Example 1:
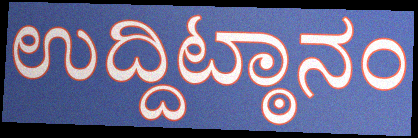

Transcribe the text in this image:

ಉದ್ದಿಟ್ಠಾನಂ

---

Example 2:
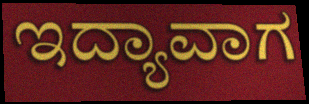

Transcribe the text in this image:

ಇದ್ಯಾವಾಗ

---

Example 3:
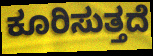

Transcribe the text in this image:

ಕೂರಿಸುತ್ತದೆ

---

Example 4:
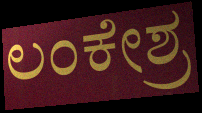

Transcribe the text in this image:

ಲಂಕೇಶ್ರ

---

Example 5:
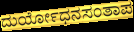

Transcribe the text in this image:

ದುರ್ಯೋಧನಸಂತಾಪ